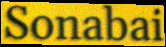
Sonabai